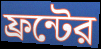
ফ্রন্টের